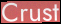
Crust